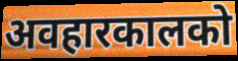
अवहारकालको